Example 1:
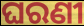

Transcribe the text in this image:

ଘରଣୀ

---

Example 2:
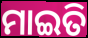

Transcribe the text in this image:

ମାଇତି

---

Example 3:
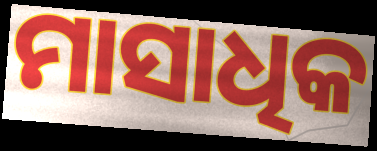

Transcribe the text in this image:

ମାସାଧିକ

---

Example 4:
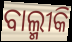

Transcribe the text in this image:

ବାଲ୍ମୀକି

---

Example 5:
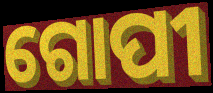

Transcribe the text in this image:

ଗୋପୀ